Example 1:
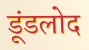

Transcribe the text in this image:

डूंडलोद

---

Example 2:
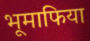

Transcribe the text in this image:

भूमाफिया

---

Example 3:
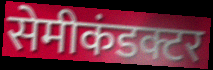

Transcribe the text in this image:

सेमीकंडक्टर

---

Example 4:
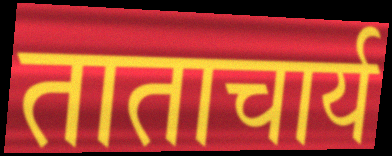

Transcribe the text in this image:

ताताचार्य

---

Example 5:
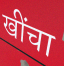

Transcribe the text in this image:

खींचा